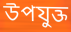
উপযুক্ত